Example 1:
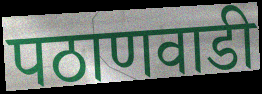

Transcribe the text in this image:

पठाणवाडी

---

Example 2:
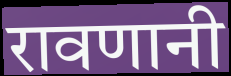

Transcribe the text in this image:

रावणानी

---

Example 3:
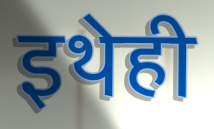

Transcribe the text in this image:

इथेही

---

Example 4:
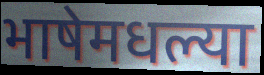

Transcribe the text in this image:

भाषेमधल्या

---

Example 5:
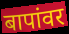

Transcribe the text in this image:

बापांवर